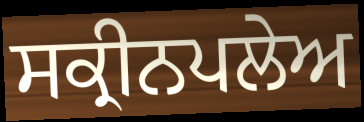
ਸਕ੍ਰੀਨਪਲੇਅ